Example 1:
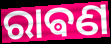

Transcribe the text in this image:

ରାଵଣ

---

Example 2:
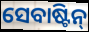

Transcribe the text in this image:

ସେବାଷ୍ଟିନ୍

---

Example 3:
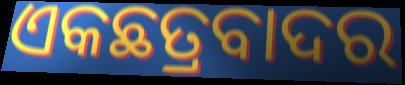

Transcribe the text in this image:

ଏକଛତ୍ରବାଦର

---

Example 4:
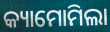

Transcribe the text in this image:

କ୍ୟାମୋମିଲା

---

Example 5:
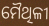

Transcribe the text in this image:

ମୈଥିଳୀ